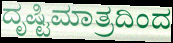
ದೃಷ್ಟಿಮಾತ್ರದಿಂದ